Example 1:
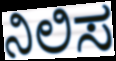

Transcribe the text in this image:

ನಿಲಿಸ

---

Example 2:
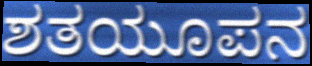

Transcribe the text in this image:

ಶತಯೂಪನ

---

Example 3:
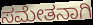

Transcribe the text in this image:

ಸಮೇತನಾಗಿ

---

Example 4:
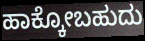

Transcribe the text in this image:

ಹಾಕ್ಕೋಬಹುದು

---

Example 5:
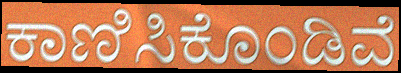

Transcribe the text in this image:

ಕಾಣಿಸಿಕೊಂಡಿವೆ